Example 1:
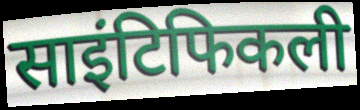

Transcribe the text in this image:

साइंटिफिकली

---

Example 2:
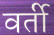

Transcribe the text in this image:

वर्ती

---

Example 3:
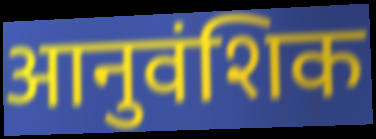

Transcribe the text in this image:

आनुवंशिक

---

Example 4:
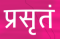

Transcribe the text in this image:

प्रसृतं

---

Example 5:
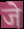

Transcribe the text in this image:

जे